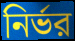
নির্ভর